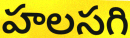
హలసగి